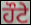
ਹੌਟੇ